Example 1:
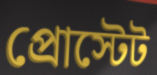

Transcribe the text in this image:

প্রোস্টেট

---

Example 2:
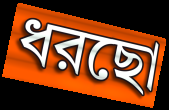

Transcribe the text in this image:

ধরছো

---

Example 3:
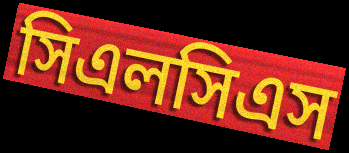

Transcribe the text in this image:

সিএলসিএস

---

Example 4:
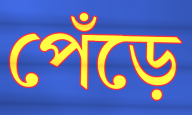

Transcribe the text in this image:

পেঁড়ে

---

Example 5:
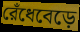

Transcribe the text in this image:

রেঁধেবেড়ে